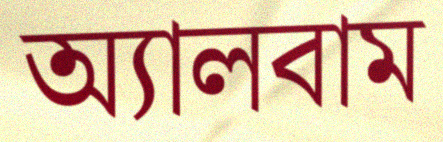
অ্যালবাম